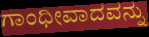
ಗಾಂಧೀವಾದವನ್ನು